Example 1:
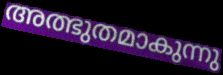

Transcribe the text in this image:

അത്ഭുതമാകുന്നു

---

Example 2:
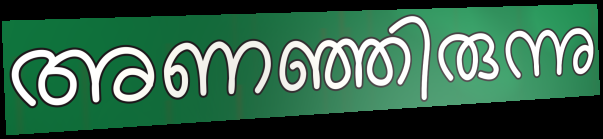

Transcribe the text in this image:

അണഞ്ഞിരുന്നു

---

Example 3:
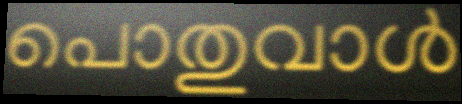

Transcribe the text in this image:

പൊതുവാൾ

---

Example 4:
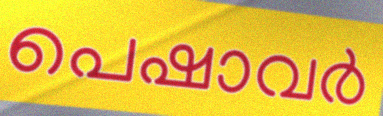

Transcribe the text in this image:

പെഷാവർ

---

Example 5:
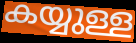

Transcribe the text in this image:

കയ്യുള്ള